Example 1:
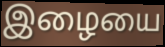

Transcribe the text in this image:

இழையை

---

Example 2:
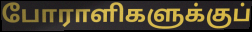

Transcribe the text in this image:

போராளிகளுக்குப்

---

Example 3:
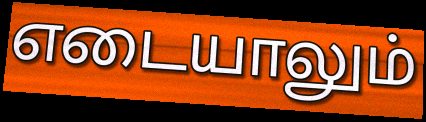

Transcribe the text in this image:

எடையாலும்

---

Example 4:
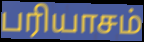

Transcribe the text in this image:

பரியாசம்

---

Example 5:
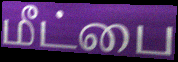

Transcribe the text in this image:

மீட்பை